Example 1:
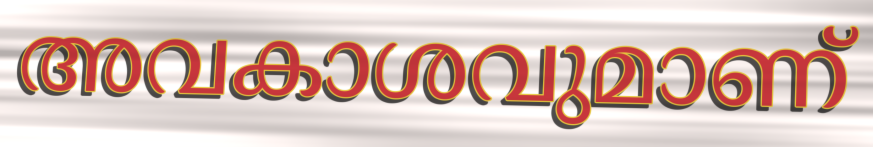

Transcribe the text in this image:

അവകാശവുമാണ്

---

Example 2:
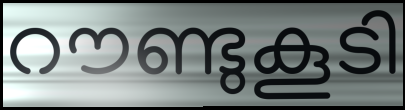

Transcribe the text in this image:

റൗണ്ടുകൂടി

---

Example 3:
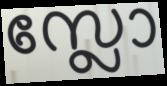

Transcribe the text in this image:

സ്ലോ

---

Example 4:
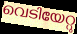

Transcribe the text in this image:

വെടിയേറ്റു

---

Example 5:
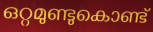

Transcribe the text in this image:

ഒറ്റമുണ്ടുകൊണ്ട്